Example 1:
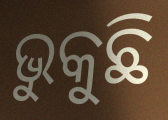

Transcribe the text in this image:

ଭୁକୁଛି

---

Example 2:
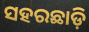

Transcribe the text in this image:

ସହରଛାଡ଼ି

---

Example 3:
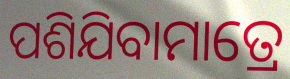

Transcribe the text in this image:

ପଶିଯିବାମାତ୍ରେ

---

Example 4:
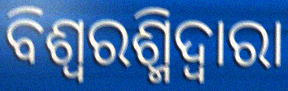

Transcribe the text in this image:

ବିଶ୍ୱରଶ୍ମିଦ୍ୱାରା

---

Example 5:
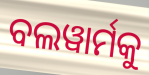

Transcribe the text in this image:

ବଲୱାର୍ମକୁ